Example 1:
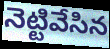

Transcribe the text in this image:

నెట్టివేసిన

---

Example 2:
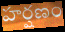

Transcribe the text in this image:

హర్షణం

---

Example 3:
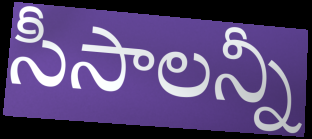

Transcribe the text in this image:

సీసాలన్నీ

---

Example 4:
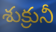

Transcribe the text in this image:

శుక్రునీ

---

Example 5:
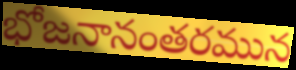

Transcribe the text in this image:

భోజనానంతరమున